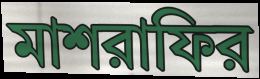
মাশরাফির